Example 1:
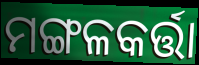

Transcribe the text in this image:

ମଙ୍ଗଳକର୍ତ୍ତା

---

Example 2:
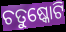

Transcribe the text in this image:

ଚତୁଷ୍କୋଟି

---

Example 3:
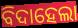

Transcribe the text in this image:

ବିଦାହେଲା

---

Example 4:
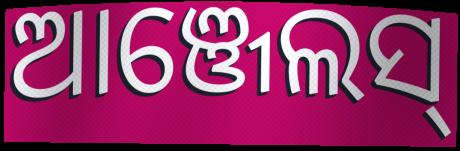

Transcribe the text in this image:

ଆଞ୍ଜେଲସ୍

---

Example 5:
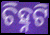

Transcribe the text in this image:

ଚିହ୍ନଟି